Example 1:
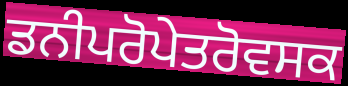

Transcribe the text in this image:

ਡਨੀਪਰੋਪੇਤਰੋਵਸਕ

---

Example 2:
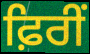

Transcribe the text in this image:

ਫ਼ਿਰੀਂ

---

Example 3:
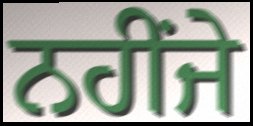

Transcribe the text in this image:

ਨਹੀਂਜੇ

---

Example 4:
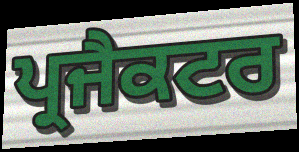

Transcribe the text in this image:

ਪ੍ਰਜੈਕਟਰ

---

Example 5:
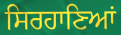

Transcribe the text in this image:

ਸਿਰਹਾਣਿਆਂ